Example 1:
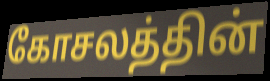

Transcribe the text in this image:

கோசலத்தின்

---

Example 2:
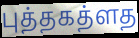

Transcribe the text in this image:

புத்தகத்ளத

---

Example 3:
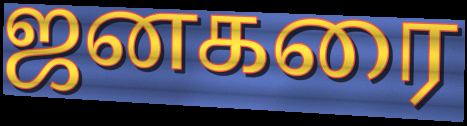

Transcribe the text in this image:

ஜனகரை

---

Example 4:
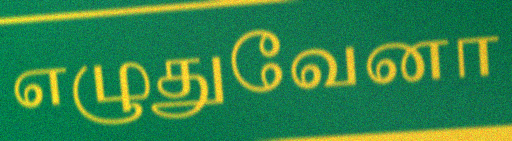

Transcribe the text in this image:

எழுதுவேனா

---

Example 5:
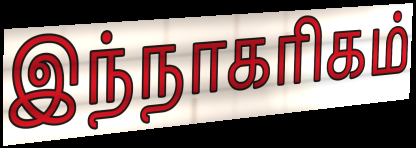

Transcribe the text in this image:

இந்நாகரிகம்